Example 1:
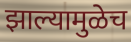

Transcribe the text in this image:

झाल्यामुळेच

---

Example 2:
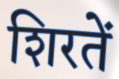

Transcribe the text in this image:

शिरतें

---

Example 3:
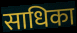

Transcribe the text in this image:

साधिका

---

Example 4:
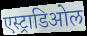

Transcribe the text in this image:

एस्ट्राडिओल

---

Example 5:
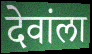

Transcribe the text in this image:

देवांला